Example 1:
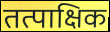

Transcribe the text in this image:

तत्पाक्षिक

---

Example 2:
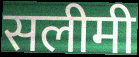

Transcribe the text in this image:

सलीमी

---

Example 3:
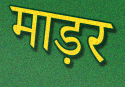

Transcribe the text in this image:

माड़र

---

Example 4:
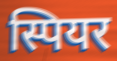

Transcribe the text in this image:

स्पियर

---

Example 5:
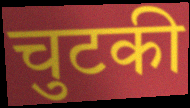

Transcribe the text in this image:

चुटकी